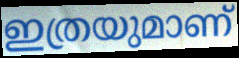
ഇത്രയുമാണ്